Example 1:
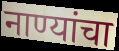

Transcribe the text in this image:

नाण्यांचा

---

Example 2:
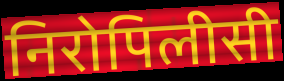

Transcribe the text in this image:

निरोपिलीसी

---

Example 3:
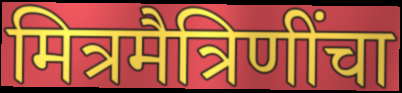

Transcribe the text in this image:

मित्रमैत्रिणींचा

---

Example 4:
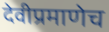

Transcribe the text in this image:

देवीप्रमाणेच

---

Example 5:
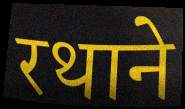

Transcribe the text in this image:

रथाने